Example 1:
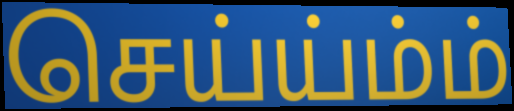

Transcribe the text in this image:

செய்ய்ம்ம்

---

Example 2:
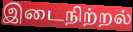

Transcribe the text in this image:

இடைநிற்றல்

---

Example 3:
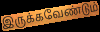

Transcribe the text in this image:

இருக்கவேண்டும்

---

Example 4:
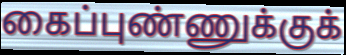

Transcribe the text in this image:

கைப்புண்ணுக்குக்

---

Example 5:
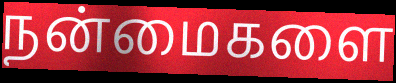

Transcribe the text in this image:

நன்மைகளை